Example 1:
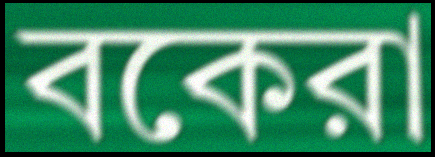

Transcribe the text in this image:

বকেরা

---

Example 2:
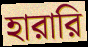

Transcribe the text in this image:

হারারি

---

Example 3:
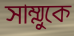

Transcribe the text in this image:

সাম্মুকে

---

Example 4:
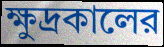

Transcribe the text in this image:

ক্ষুদ্রকালের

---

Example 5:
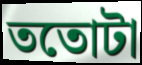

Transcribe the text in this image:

ততোটা